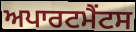
ਅਪਾਰਟਮੈਂਟਸ